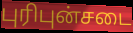
புரிபுன்சடை